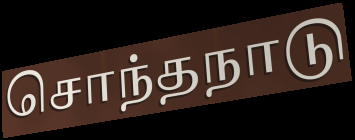
சொந்தநாடு